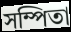
সম্পিতা